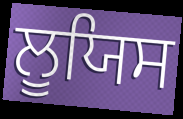
ਲੂਯਿਸ